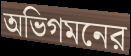
অভিগমনের